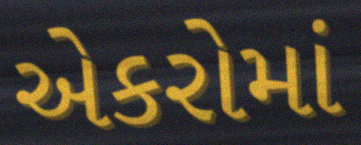
એકરોમાં